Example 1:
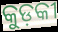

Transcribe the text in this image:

କୁଡ଼କୀ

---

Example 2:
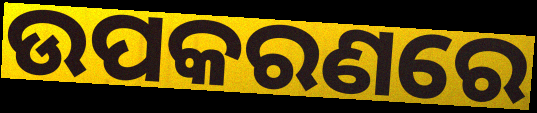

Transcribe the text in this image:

ଉପକରଣରେ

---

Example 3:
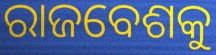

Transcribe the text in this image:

ରାଜବେଶକୁ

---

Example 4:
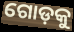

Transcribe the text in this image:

ଗୋଡ଼କୁ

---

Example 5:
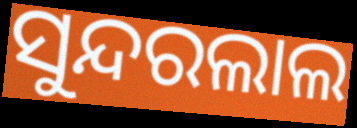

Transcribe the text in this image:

ସୁନ୍ଦରଲାଲ